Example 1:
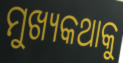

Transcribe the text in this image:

ମୁଖ୍ୟକଥାକୁ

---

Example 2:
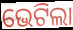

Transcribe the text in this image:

ଭେଟିଲା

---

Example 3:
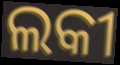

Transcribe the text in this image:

ଲକୀ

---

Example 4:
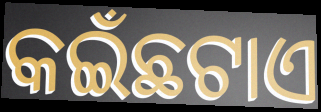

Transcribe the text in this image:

କଇଁଛଟାଏ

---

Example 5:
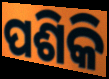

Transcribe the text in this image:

ପଶିକି